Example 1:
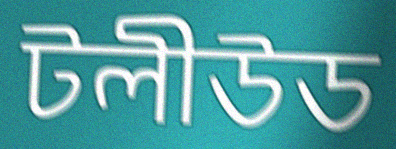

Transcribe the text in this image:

টলীউড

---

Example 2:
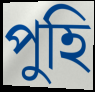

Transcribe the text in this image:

পুহি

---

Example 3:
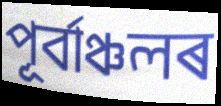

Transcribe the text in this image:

পূৰ্বাঞ্চলৰ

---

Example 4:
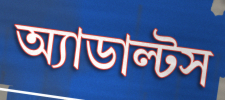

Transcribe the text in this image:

অ্যাডাল্টস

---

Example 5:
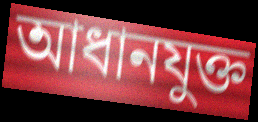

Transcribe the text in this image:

আধানযুক্ত